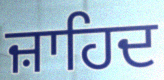
ਜ਼ਾਹਿਦ